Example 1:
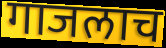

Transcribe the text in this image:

गाजलाच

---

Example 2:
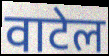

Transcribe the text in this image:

वाटेल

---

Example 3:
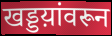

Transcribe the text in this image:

खड्डय़ांवरून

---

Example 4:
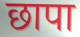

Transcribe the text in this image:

छापा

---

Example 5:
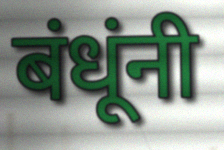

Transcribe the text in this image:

बंधूंनी